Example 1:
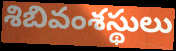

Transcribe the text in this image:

శిబివంశస్థులు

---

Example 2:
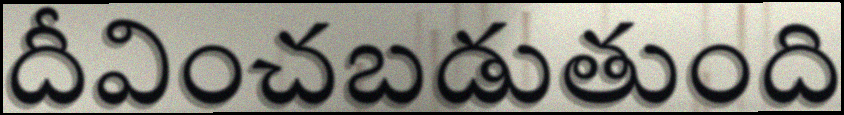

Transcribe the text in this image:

దీవించబడుతుంది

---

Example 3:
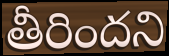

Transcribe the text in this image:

తీరిందని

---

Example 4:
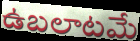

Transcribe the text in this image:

ఉబలాటమే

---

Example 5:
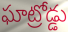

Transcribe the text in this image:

ఘాట్రోడ్డు